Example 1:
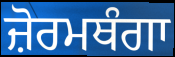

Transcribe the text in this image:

ਜ਼ੋਰਮਥੰਗਾ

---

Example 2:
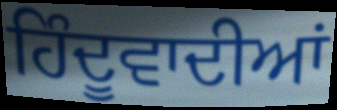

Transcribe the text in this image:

ਹਿੰਦੂਵਾਦੀਆਂ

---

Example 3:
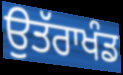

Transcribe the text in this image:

ਉਤੱਰਾਖੰਡ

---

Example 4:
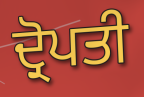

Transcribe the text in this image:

ਦ੍ਰੋਪਤੀ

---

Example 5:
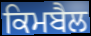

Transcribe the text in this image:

ਕਿਮਬੈਲ